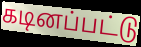
கடினப்பட்டு